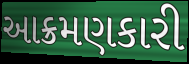
આક્રમણકારી